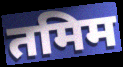
तमिम